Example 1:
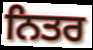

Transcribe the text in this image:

ਨਿਤਰ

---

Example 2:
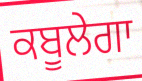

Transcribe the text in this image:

ਕਬੂਲੇਗਾ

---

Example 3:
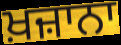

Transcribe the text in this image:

ਖ਼ਜ਼ਾਨਾ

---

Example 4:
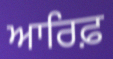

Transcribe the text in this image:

ਆਰਿਫ਼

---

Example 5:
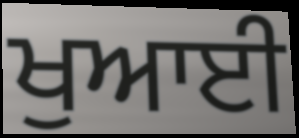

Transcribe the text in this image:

ਖੁਆਈ